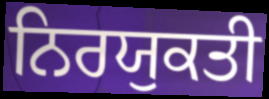
ਨਿਰਯੁਕਤੀ